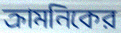
ক্রামনিকের